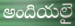
అందియలై